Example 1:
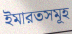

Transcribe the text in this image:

ইমারতসমূহ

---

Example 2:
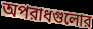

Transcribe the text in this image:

অপরাধগুলোর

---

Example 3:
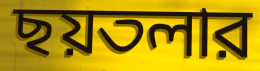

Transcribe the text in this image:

ছয়তলার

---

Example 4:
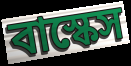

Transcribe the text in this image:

বাস্কেস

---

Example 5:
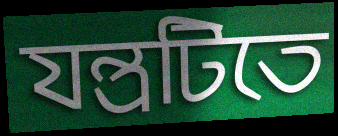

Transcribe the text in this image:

যন্ত্রটিতে